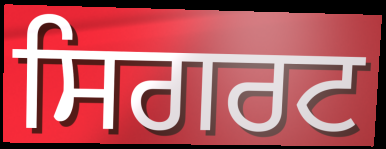
ਸਿਗਰਟ